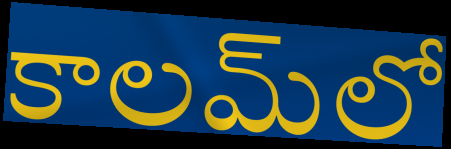
కాలమ్‍లో